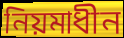
নিয়মাধীন